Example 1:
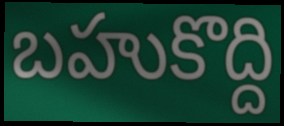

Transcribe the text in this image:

బహుకొద్ది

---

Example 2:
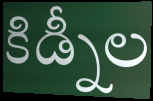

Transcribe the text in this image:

కిడ్నీల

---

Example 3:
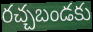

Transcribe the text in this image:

రచ్చబండకు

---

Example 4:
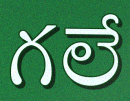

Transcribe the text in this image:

గలే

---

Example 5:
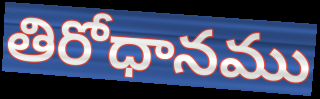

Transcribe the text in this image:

తిరోధానము